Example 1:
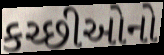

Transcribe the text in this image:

કચ્છીઓનો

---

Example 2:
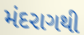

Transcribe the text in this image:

મંદરાગથી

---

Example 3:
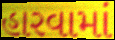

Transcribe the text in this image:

હારવામાં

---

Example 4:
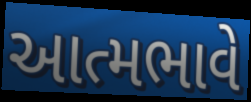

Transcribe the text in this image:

આત્મભાવે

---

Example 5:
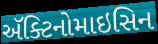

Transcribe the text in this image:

ઍક્ટિનોમાઇસિન